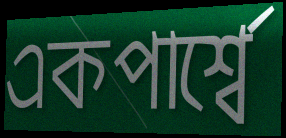
একপার্শ্বে